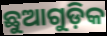
ଛୁଆଗୁଡ଼ିକ